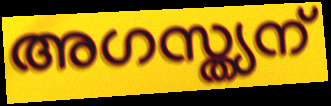
അഗസ്ത്യന്